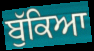
ਬੁੱਕਿਆ